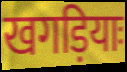
खगड़ियाः